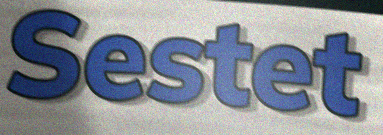
Sestet